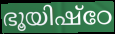
ഭൂയിഷ്ഠേ